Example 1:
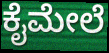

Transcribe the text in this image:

ಕೈಮೇಲೆ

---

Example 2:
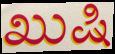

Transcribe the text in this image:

ಖುಷಿ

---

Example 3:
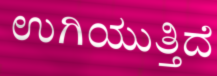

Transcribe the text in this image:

ಉಗಿಯುತ್ತಿದೆ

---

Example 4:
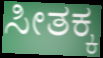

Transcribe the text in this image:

ಸೀತಕ್ಕ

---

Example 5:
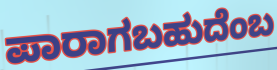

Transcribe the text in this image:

ಪಾರಾಗಬಹುದೆಂಬ